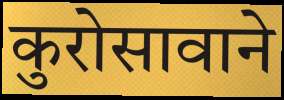
कुरोसावाने